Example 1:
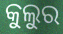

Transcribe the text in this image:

କୁଲୁର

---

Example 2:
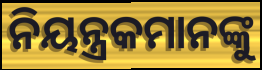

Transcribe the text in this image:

ନିୟନ୍ତ୍ରକମାନଙ୍କୁ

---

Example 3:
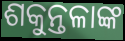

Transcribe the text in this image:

ଶକୁନ୍ତଳାଙ୍କ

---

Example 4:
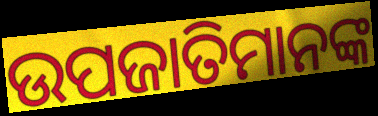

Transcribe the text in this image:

ଉପଜାତିମାନଙ୍କ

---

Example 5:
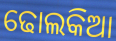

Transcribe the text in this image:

ଢୋଲକିଆ